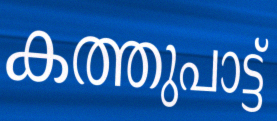
കത്തുപാട്ട്